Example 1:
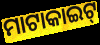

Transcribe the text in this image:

ମାଟାକାଇଟ୍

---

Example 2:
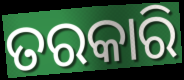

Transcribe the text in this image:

ତରକାରି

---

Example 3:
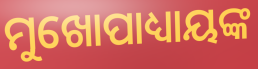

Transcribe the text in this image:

ମୁଖୋପାଧ୍ୟାୟଙ୍କ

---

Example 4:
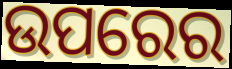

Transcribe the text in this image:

ଉପରେର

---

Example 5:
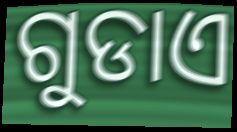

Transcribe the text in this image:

ଗୁଡାଏ